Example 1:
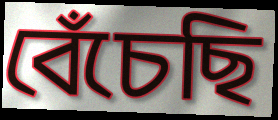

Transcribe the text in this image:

বেঁচেছি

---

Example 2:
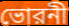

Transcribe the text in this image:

ভোরনী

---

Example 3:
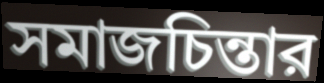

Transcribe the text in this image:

সমাজচিন্তার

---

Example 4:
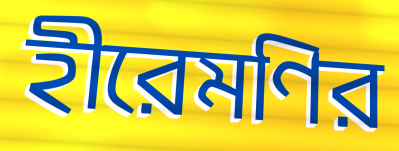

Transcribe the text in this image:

হীরেমণির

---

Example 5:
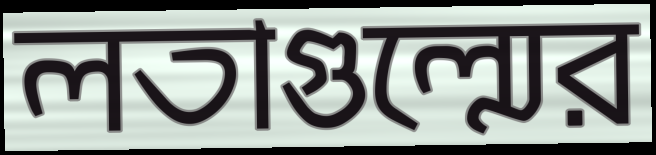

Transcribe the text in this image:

লতাগুল্মের